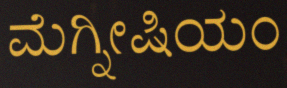
ಮೆಗ್ನೀಷಿಯಂ